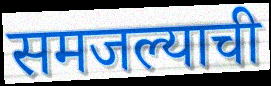
समजल्याची